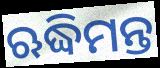
ଋଦ୍ଧିମନ୍ତ